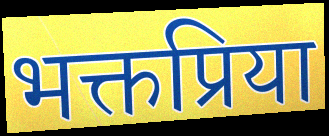
भक्तप्रिया